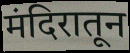
मंदिरातून